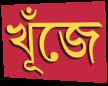
খূঁজে